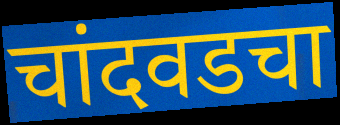
चांदवडचा